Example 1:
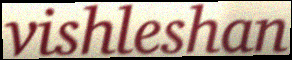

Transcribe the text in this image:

vishleshan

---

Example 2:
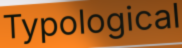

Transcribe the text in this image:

Typological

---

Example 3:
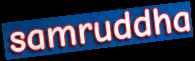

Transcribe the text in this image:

samruddha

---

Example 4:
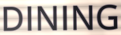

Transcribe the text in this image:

DINING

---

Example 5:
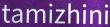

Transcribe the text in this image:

tamizhini